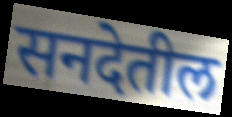
सनदेतील